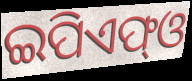
ଇପିଏଫ୍ଓ